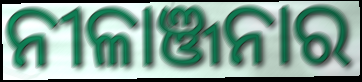
ନୀଳାଞ୍ଜନାର